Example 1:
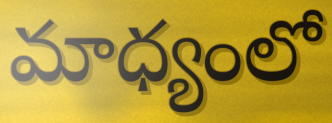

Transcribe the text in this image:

మాధ్యంలో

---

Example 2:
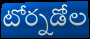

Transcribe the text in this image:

టోర్నడోల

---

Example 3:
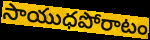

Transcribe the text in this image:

సాయుధపోరాటం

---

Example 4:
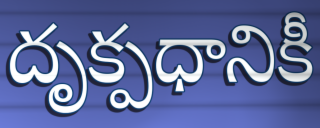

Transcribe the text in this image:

దృక్పధానికీ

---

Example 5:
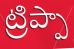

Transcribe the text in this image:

ట్రిప్పా